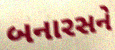
બનારસને